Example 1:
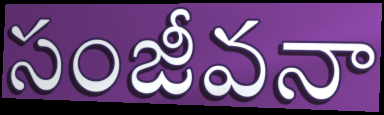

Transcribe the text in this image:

సంజీవనా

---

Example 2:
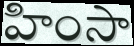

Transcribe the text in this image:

హింసా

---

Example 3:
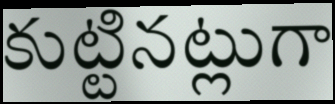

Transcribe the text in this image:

కుట్టినట్లుగా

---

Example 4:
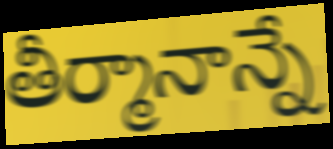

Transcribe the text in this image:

తీర్మానాన్నే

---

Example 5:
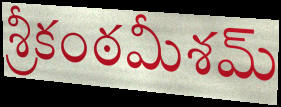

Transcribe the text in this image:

శ్రీకంఠమీశమ్